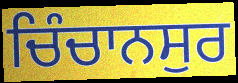
ਚਿੰਚਾਨਸੁਰ